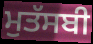
ਮੁਤੱਸਬੀ